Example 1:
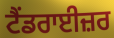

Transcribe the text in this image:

ਟੈਂਡਰਾਈਜ਼ਰ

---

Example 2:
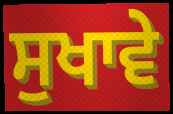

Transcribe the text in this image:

ਸੁਖਾਵੇ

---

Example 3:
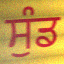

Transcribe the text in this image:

ਸੁੰਡ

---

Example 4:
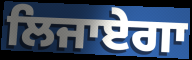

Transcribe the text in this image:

ਲਿਜਾਏਗਾ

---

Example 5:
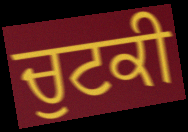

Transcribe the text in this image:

ਚੁਟਕੀ